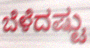
ಬೆಳೆದಷ್ಟು